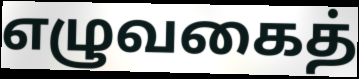
எழுவகைத்